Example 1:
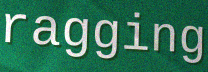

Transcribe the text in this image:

ragging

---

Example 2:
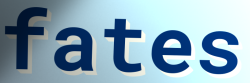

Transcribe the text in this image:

fates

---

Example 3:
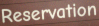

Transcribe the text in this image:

Reservation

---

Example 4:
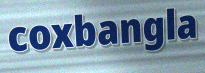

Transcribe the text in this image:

coxbangla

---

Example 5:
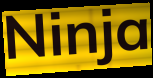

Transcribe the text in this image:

Ninja